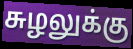
சுழலுக்கு